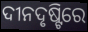
ଦୀନଦୃଷ୍ଟିରେ